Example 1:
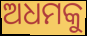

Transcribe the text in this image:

ଅଧମକୁ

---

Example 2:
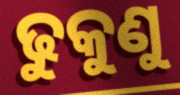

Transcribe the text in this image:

ଢୁକୁଣୁ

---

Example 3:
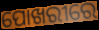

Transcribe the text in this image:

ପୋଖରୀରେ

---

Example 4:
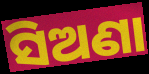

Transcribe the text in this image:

ସିଅଣା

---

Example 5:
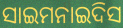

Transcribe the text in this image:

ସାଇମନାଇଦିସ